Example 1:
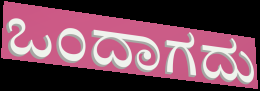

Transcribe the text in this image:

ಒಂದಾಗದು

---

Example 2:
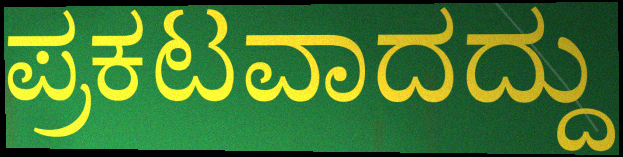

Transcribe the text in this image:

ಪ್ರಕಟವಾದದ್ದು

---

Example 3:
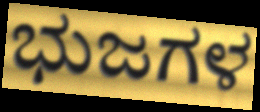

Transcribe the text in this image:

ಭುಜಗಳ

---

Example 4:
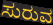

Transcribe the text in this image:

ಸುರುವ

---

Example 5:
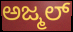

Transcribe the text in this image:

ಅಜ್ಮಲ್